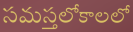
సమస్తలోకాలలో